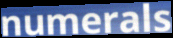
numerals